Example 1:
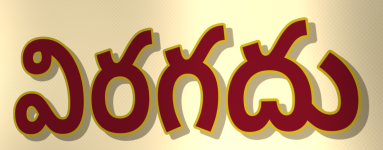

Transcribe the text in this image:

విరగదు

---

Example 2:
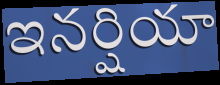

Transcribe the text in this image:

ఇనర్షియా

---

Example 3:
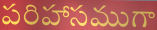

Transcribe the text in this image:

పరిహాసముగా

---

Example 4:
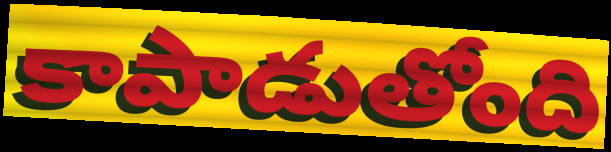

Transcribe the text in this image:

కాపాడుతోంది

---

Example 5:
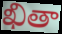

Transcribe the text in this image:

ఖితా